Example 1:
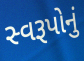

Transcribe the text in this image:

સ્વરૂપોનું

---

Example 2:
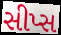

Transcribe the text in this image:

સીપ્સ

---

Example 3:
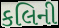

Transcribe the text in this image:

કલિની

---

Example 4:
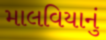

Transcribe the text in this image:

માલવિયાનું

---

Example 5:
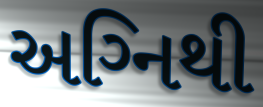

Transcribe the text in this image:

અગ્‍નિથી